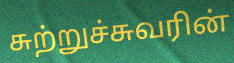
சுற்றுச்சுவரின்